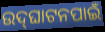
ଉଦ୍‌ଘାଟନପାଇଁ